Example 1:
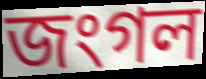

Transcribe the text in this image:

জংগল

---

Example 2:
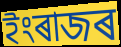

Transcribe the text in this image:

ইংৰাজৰ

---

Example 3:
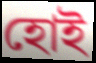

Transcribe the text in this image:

হোই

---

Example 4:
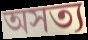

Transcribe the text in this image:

অসত্য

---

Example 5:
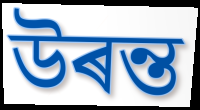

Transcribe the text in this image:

উৰন্ত